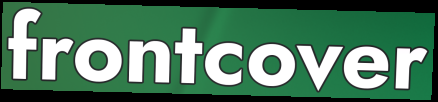
frontcover